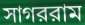
সাগররাম